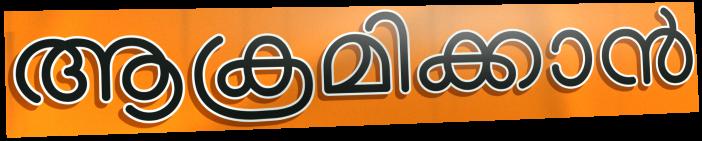
ആക്രമിക്കാൻ